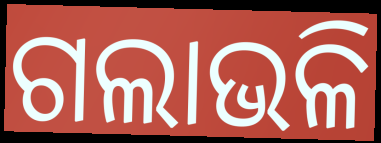
ଗଲାଭଳି